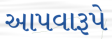
આપવારૂપે